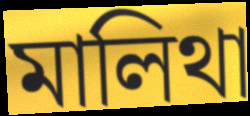
মালিথা